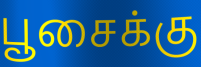
பூசைக்கு